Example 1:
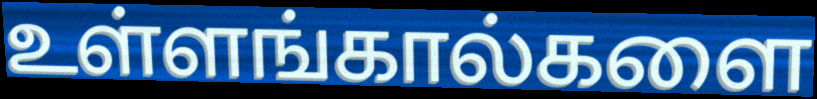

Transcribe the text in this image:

உள்ளங்கால்களை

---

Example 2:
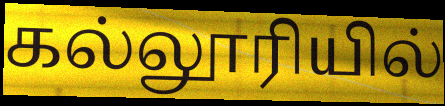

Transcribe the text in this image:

கல்லூரியில்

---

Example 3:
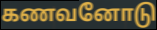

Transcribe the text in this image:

கணவனோடு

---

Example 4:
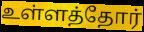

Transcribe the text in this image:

உள்ளத்தோர்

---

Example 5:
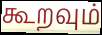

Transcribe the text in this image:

கூறவும்